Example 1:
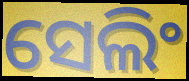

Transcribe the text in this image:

ସେଲିଂ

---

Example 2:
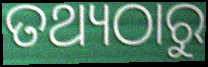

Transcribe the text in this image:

ତଥ୍ୟଠାରୁ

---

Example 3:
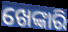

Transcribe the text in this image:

ଖେଙ୍କାରି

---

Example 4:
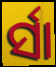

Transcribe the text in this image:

ର୍ସା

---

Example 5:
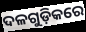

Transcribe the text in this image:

ଦଳଗୁଡ଼ିକରେ